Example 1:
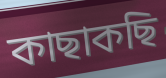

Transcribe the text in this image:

কাছাকছি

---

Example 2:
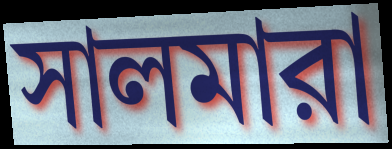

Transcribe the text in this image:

সালমারা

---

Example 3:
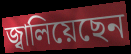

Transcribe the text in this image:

জ্বালিয়েছেন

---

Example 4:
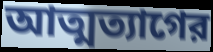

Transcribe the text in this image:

আত্মত্যাগের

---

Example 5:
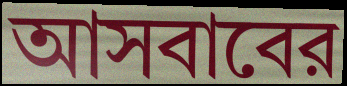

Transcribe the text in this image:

আসবাবের